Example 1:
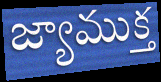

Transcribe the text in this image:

జ్యాముక్త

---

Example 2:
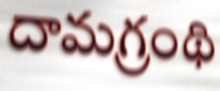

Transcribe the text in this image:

దామగ్రంథి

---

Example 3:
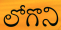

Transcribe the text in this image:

లోగొని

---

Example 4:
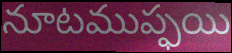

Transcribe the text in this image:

నూటముప్ఫయి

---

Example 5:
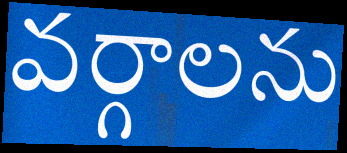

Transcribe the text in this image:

వర్గాలను